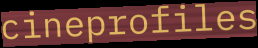
cineprofiles